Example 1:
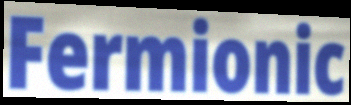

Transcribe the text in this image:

Fermionic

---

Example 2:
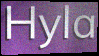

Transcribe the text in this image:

Hyla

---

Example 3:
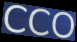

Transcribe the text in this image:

CCO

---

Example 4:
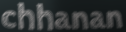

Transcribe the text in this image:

chhanan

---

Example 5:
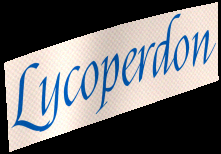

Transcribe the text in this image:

Lycoperdon